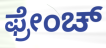
ಫ್ರೇಂಚ್